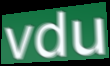
vdu